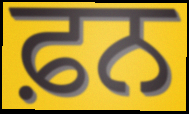
ਫ਼ਨ